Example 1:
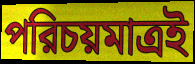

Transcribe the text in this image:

পরিচয়মাত্রই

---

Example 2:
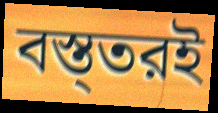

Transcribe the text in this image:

বস্ত্তরই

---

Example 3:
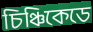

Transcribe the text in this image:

চিঞ্চিকেডে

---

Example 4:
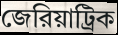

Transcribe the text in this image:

জেরিয়াট্রিক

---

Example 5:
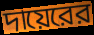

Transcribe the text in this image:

দায়েরের